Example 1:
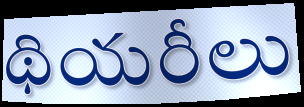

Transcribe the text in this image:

థియరీలు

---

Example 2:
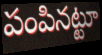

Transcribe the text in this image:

పంపినట్టూ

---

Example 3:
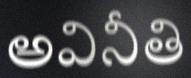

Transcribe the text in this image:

అవినీతి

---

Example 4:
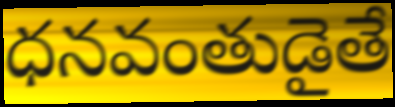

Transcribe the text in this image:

ధనవంతుడైతే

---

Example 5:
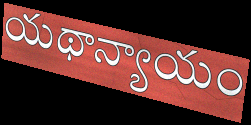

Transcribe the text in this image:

యథాన్యాయం